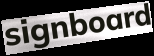
signboard